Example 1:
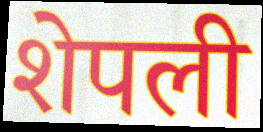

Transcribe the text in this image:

शेपली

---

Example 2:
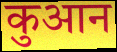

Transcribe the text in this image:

कुआन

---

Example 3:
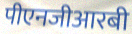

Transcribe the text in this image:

पीएनजीआरबी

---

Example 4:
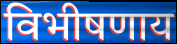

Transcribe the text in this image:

विभीषणाय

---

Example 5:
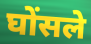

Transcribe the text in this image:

घोंसले